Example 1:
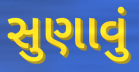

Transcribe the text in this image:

સુણાવું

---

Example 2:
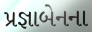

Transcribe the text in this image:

પ્રજ્ઞાબેનના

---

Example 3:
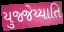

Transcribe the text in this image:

યુજ્જેય્યાતિ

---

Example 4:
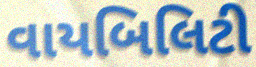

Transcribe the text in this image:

વાયબિલિટી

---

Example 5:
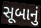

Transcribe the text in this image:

સૂબાનું